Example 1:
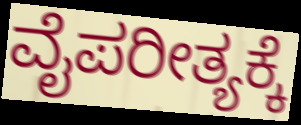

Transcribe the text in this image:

ವೈಪರೀತ್ಯಕ್ಕೆ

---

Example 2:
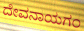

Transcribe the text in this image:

ದೇವನಾಯಗಂ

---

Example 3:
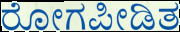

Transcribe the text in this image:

ರೋಗಪೀಡಿತ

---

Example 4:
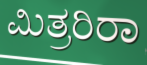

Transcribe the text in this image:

ಮಿತ್ರರಿರಾ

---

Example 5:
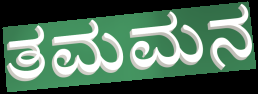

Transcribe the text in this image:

ತಮಮನ